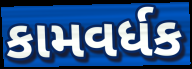
કામવર્ધક